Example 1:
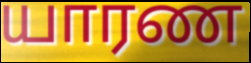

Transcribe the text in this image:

யாரண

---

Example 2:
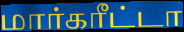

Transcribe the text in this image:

மார்கரீட்டா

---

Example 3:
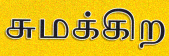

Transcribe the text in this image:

சுமக்கிற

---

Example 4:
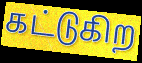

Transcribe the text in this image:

கட்டுகிற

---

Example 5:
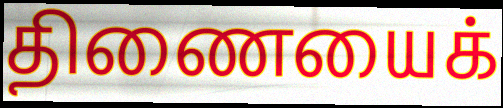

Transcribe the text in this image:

திணையைக்